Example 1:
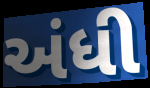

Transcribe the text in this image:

અંધી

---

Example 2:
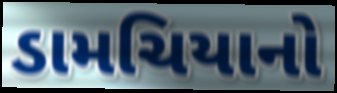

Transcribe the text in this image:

ડામચિયાનો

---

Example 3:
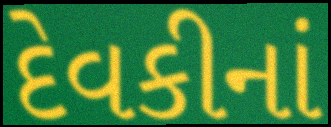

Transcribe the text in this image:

દેવકીનાં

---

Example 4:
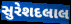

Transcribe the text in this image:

સુરેશદલાલ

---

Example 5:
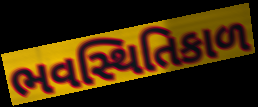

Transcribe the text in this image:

ભવસ્થિતિકાળ